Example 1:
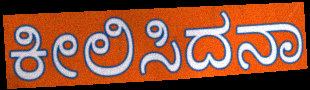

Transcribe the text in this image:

ಕೀಲಿಸಿದನಾ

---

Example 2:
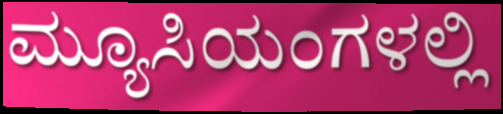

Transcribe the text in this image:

ಮ್ಯೂಸಿಯಂಗಳಲ್ಲಿ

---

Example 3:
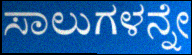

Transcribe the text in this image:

ಸಾಲುಗಳನ್ನೇ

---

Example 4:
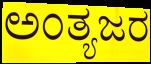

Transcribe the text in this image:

ಅಂತ್ಯಜರ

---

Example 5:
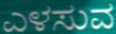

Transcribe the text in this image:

ಎಳಸುವ